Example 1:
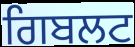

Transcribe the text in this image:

ਗਿਬਲਟ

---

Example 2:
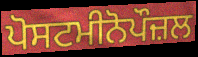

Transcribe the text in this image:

ਪੋਸਟਮੀਨੋਪੌਜ਼ਲ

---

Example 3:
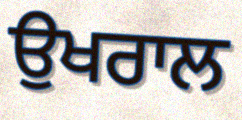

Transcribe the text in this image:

ਉਖਰਾਲ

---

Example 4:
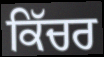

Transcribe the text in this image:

ਕਿੱਚਰ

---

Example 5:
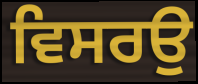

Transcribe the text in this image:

ਵਿਸਰਉ